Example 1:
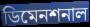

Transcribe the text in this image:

ডিমেনশনাল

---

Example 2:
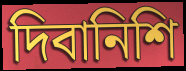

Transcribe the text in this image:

দিবানিশি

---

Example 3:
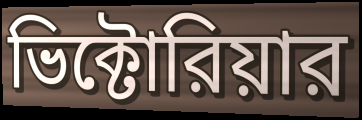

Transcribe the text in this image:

ভিক্টোরিয়ার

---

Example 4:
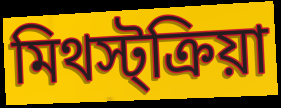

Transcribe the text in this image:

মিথস্ট্ক্রিয়া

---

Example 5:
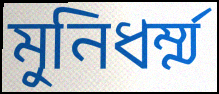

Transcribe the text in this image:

মুনিধর্ম্ম